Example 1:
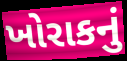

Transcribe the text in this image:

ખોરાકનું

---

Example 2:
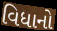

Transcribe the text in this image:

વિધાનો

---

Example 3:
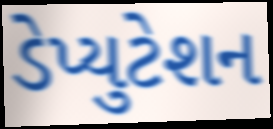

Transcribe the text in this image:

ડેપ્યુટેશન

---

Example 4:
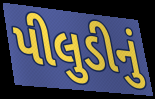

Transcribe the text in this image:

પીલુડીનું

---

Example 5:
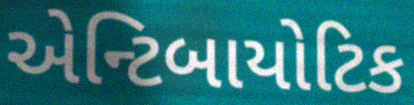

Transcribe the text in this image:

એન્ટિબાયોટિક